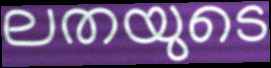
ലതയുടെ